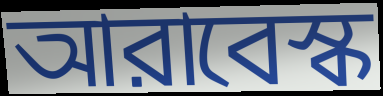
আরাবেস্ক